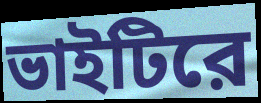
ভাইটিরে